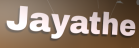
Jayathe